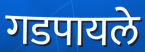
गडपायले